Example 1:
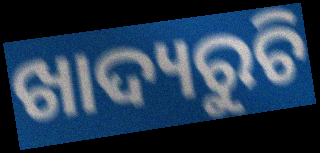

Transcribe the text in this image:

ଖାଦ୍ୟରୁଚି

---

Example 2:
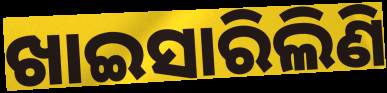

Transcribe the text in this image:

ଖାଇସାରିଲିଣି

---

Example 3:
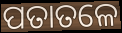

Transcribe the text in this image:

ପତାତଳେ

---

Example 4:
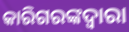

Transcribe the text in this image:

କାରିଗରଙ୍କଦ୍ୱାରା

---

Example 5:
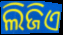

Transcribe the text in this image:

ଲିଜିଏ